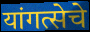
यांगत्सेचे